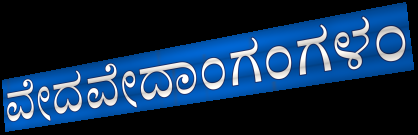
ವೇದವೇದಾಂಗಂಗಳಂ